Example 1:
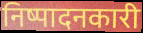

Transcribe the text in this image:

निष्पादनकारी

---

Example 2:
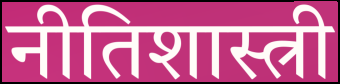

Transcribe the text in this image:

नीतिशास्त्री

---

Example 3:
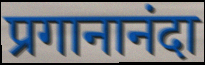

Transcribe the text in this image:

प्रगानानंदा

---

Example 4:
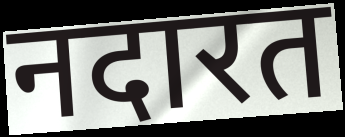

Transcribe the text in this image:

नदारत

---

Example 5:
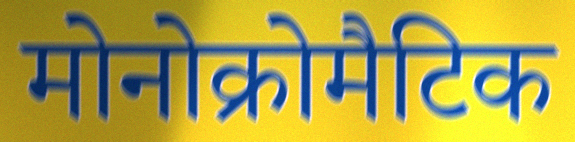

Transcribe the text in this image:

मोनोक्रोमैटिक